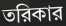
তরিকার